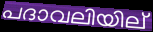
പദാവലിയില്